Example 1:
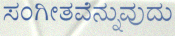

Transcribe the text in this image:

ಸಂಗೀತವೆನ್ನುವುದು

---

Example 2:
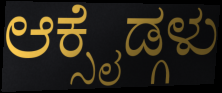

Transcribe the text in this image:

ಆಕ್ಸೈಡ್ಗಳು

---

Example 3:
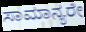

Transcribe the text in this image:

ಸಾಮಾನ್ಯರೇ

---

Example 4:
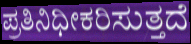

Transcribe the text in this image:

ಪ್ರತಿನಿಧೀಕರಿಸುತ್ತದೆ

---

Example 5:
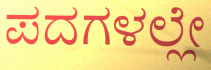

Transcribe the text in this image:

ಪದಗಳಲ್ಲೇ